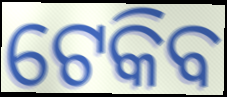
ଟେକିବ